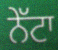
ਨੇੱਟਾ